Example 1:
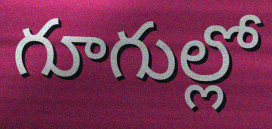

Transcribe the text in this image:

గూగుల్లో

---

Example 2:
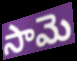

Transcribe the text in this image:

సామె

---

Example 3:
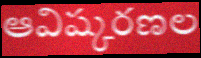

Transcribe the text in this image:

ఆవిష్కరణల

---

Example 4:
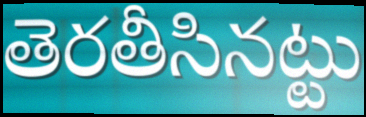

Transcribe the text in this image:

తెరతీసినట్టు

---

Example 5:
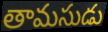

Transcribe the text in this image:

తామసుడు